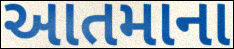
આતમાના